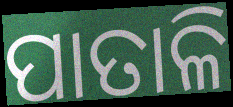
ପାତାଳି